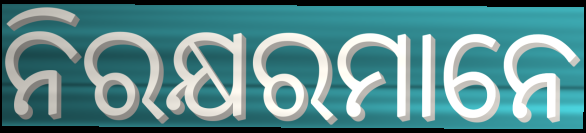
ନିରକ୍ଷରମାନେ